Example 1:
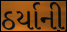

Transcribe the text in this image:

ઠર્યાની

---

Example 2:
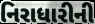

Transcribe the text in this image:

નિરાધારીની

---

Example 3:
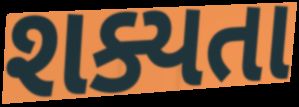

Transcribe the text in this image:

શક્યતા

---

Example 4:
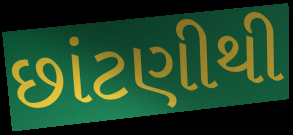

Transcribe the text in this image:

છાંટણીથી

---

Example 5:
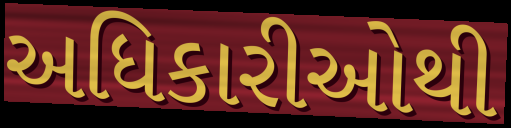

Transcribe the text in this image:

અધિકારીઓથી